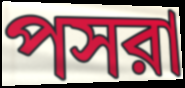
পসরা